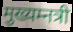
मुख्यम्नत्री